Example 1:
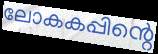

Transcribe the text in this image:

ലോകകപ്പിന്റെ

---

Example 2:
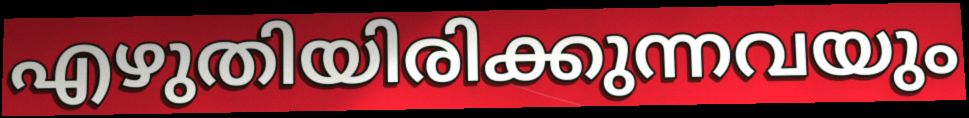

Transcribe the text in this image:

എഴുതിയിരിക്കുന്നവയും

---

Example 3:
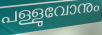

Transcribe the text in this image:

പള്ളുവോനും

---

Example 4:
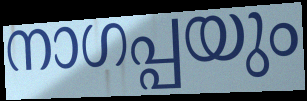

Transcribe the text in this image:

നാഗപ്പയും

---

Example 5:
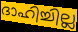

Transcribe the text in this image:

ദാഹിച്ചില്ല